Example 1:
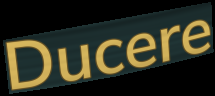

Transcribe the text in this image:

Ducere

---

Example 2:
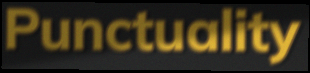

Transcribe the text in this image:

Punctuality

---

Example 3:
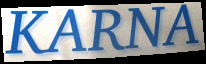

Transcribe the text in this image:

KARNA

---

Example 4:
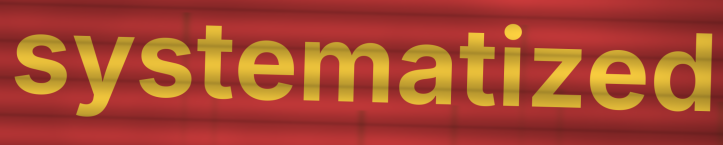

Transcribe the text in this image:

systematized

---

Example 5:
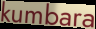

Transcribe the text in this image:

kumbara